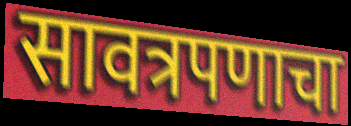
सावत्रपणाचा